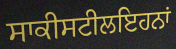
ਸਾਕੀਸਟੀਲਇਹਨਾਂ